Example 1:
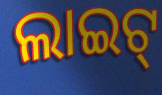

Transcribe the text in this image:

ଲାଇଟ୍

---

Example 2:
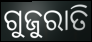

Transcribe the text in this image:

ଗୁଜୁରାତି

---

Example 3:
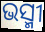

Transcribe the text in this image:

ଭସ୍ମୀ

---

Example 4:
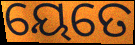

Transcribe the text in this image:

ୟେତେ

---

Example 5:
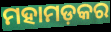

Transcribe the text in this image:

ମହାମଡ଼କର